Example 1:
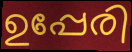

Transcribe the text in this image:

ഉപ്പേരി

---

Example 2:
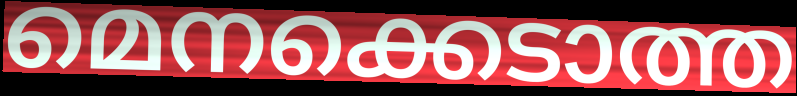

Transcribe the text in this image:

മെനക്കെടാത്ത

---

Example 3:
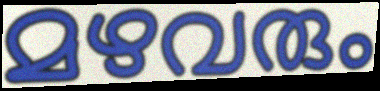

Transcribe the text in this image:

മഴവരും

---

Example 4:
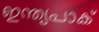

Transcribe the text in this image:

ഇന്ത്യപാക്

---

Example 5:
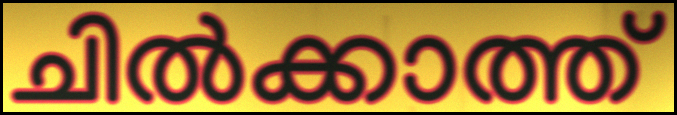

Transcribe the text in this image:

ചിൽക്കാത്ത്